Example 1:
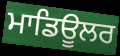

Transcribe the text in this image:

ਮਾਡਿਊਲਰ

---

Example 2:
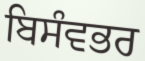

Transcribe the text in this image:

ਬਿਸੰਵਭਰ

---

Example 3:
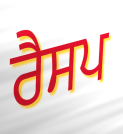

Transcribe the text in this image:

ਰੈਸਪ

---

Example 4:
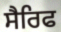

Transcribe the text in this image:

ਸੈਰਿਫ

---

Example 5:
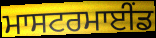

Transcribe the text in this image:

ਮਾਸਟਰਮਾਈਂਡ